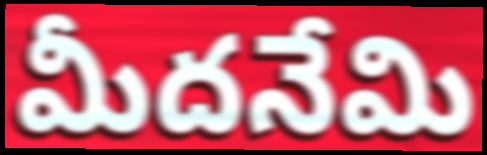
మీదనేమి